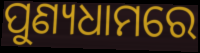
ପୁଣ୍ୟଧାମରେ